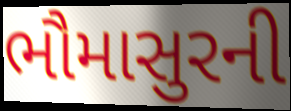
ભૌમાસુરની